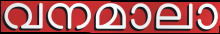
വനമാലാ